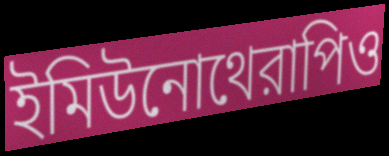
ইমিউনোথেরাপিও